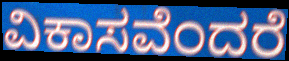
ವಿಕಾಸವೆಂದರೆ